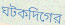
ঘটকদিগের